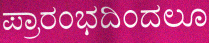
ಪ್ರಾರಂಭದಿಂದಲೂ